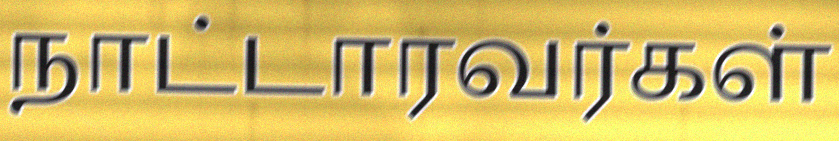
நாட்டாரவர்கள்